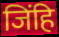
जिंहि